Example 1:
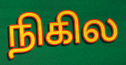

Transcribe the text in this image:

நிகில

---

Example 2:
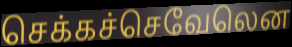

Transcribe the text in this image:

செக்கச்செவேலென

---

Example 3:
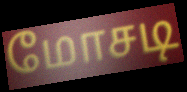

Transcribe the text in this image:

மோசடி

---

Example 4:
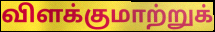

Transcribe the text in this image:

விளக்குமாற்றுக்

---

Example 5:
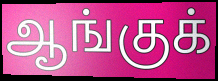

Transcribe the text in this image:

ஆங்குக்